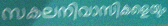
സകലനിവാസികളെയും